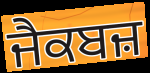
ਜੈਕਬਜ਼